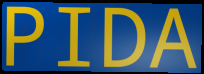
PIDA